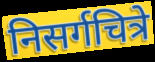
निसर्गचित्रे